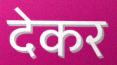
देकर